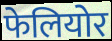
फेलियोर